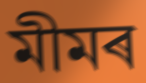
মীমৰ